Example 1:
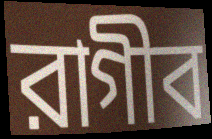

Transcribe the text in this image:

রাগীব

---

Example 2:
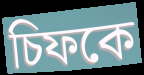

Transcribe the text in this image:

চিফকে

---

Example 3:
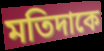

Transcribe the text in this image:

মতিদাকে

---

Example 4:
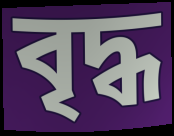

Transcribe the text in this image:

বৃদ্ধ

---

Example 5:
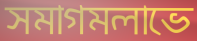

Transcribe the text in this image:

সমাগমলাভে